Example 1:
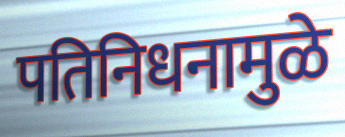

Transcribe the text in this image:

पतिनिधनामुळे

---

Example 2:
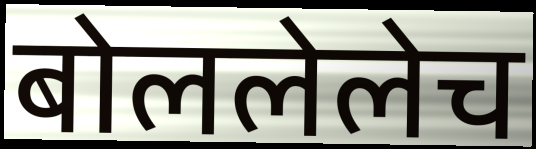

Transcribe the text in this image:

बोललेलेच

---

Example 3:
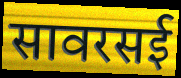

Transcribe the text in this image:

सावरसई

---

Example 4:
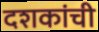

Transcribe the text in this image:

दशकांची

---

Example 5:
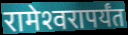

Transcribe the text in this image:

रामेश्वरापर्यंत